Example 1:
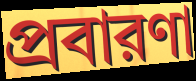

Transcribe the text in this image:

প্রবারণা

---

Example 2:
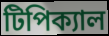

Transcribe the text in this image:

টিপিক্যাল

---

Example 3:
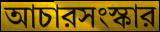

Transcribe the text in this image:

আচারসংস্কার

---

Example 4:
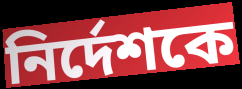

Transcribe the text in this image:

নির্দেশকে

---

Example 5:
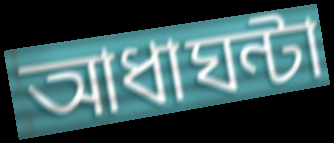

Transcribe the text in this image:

আধাঘন্টা